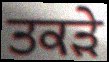
ਤਕੜੇ